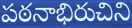
పఠనాభిరుచిని